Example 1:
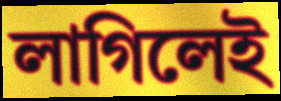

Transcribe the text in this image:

লাগিলেই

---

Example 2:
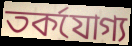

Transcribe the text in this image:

তর্কযোগ্য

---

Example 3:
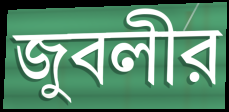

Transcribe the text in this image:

জুবলীর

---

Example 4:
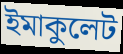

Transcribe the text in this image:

ইমাকুলেট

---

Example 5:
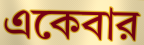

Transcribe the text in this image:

একেবার